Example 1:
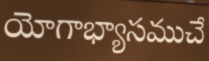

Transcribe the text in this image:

యోగాభ్యాసముచే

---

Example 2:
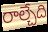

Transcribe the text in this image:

రాల్చేది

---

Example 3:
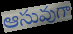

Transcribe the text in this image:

ఆసువుగా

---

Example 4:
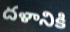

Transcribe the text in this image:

దళానికి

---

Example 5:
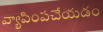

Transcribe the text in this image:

వ్యాపింపచేయడం